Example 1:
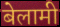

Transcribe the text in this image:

बेलामी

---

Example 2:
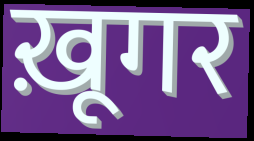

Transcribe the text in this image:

ख़ूगर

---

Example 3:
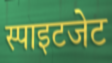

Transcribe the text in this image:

स्पाइटजेट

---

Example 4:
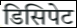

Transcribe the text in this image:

डिसिपेट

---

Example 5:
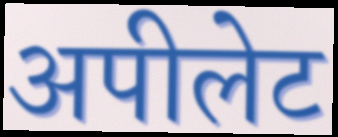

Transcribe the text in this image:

अपीलेट